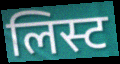
लिस्ट